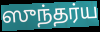
ஸுந்தர்ய